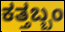
ಕತ್ತಬ್ಬಂ